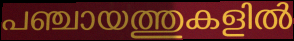
പഞ്ചായത്തുകളിൽ